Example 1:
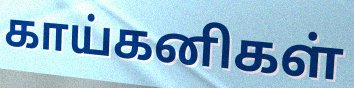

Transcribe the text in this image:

காய்கனிகள்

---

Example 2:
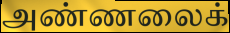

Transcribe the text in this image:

அண்ணலைக்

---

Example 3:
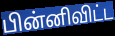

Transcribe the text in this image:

பின்னிவிட்ட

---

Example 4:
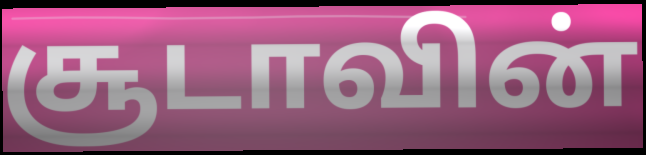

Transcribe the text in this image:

சூடாவின்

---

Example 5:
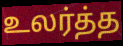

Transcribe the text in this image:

உலர்த்த